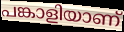
പങ്കാളിയാണ്